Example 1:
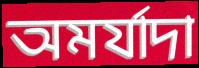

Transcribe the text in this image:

অমর্যাদা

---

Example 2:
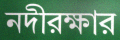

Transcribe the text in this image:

নদীরক্ষার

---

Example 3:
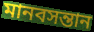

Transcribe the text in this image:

মানবসন্তান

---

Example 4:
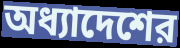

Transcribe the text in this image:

অধ্যাদেশের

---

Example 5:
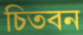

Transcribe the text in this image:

চিতবন